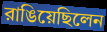
রাঙিয়েছিলেন